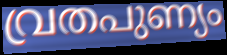
വ്രതപുണ്യം